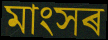
মাংসৰ